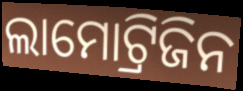
ଲାମୋଟ୍ରିଜିନ